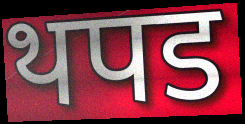
थपड